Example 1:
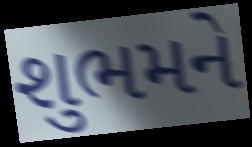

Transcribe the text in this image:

શુભમને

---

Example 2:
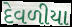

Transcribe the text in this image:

દેવળીયા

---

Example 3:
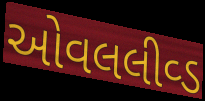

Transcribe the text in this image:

ઓવલલીવ્ડ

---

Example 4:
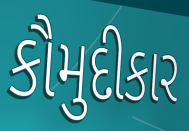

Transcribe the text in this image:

કૌમુદીકાર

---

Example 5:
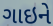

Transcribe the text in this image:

ગાઇને